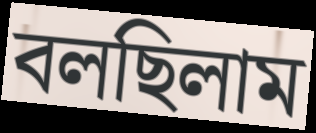
বলছিলাম